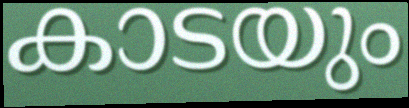
കാടയും